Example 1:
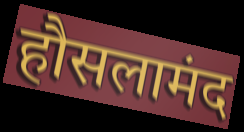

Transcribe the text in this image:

हौसलामंद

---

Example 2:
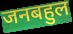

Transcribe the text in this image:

जनबहुल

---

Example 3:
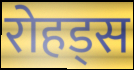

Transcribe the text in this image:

रोहड्स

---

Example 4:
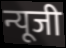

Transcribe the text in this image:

न्यूजी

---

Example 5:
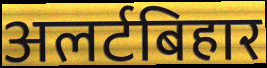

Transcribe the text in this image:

अलर्टबिहार